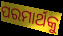
ପରମାର୍ଥକୁ